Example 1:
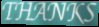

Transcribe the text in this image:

THANKS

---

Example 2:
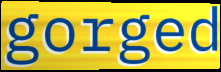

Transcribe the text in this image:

gorged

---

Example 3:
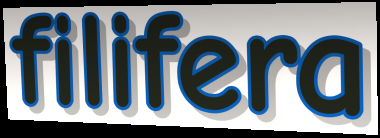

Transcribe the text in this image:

filifera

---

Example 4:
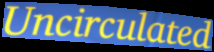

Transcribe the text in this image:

Uncirculated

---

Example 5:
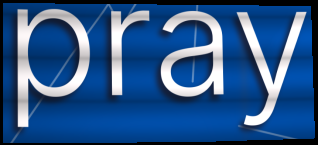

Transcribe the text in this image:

pray